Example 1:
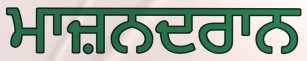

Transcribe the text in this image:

ਮਾਜ਼ਨਦਰਾਨ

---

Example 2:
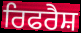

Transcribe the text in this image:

ਰਿਫਰੈਸ਼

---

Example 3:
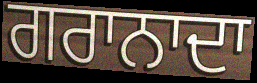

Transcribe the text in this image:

ਗਰਾਨਾਦਾ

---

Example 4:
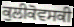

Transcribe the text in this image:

ਕੁਲੀਕੋਵਸਕੀ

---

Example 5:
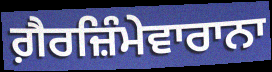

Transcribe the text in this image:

ਗ਼ੈਰਜ਼ਿੰਮੇਵਾਰਾਨਾ